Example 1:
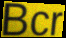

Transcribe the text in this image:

Bcr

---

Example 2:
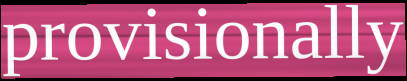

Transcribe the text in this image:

provisionally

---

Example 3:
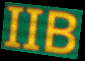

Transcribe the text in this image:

IIB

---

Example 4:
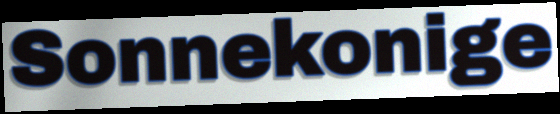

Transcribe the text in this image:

Sonnekonige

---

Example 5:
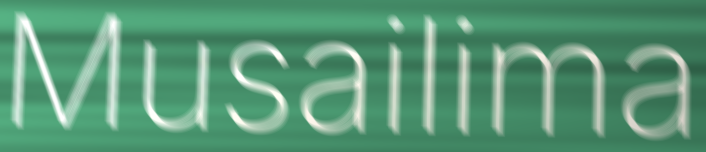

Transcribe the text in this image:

Musailima